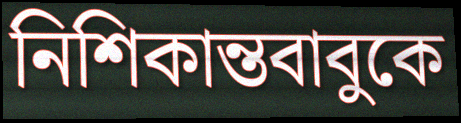
নিশিকান্তবাবুকে